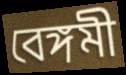
বেঙ্গমী